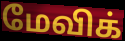
மேவிக்